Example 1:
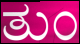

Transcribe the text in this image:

ತುಂ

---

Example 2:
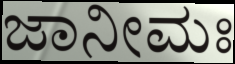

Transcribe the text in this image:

ಜಾನೀಮಃ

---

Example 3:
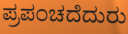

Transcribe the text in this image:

ಪ್ರಪಂಚದೆದುರು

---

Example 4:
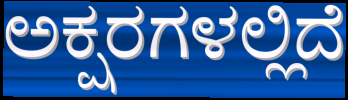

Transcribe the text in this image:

ಅಕ್ಷರಗಳಲ್ಲಿದೆ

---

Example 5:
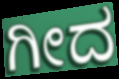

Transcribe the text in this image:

ಗೀದ